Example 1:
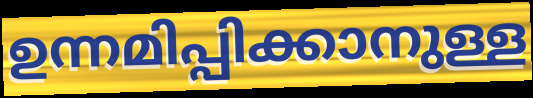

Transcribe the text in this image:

ഉന്നമിപ്പിക്കാനുള്ള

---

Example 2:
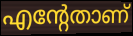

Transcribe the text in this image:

എന്റേതാണ്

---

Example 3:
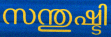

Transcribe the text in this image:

സന്തുഷ്ടി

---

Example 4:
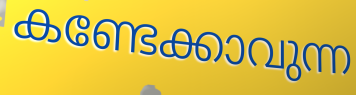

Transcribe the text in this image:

കണ്ടേക്കാവുന്ന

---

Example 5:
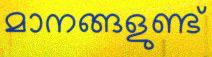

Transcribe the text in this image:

മാനങ്ങളുണ്ട്